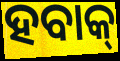
ହବାକ୍